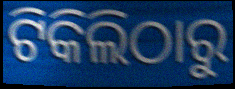
ଟିକିଲିଠାରୁ